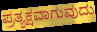
ಪ್ರತ್ಯಕ್ಷವಾಗುವುದು